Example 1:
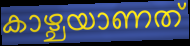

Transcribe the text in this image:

കാഴ്ചയാണത്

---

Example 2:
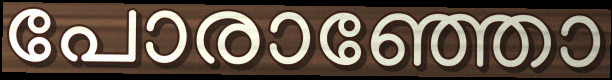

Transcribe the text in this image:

പോരാഞ്ഞോ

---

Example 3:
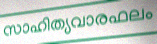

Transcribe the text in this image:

സാഹിത്യവാരഫലം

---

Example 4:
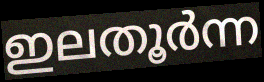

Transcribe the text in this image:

ഇലതൂർന്ന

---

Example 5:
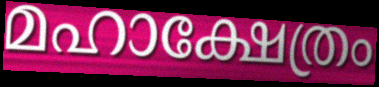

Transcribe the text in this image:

മഹാക്ഷേത്രം